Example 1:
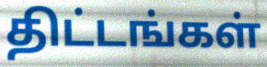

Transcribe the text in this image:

திட்டங்கள்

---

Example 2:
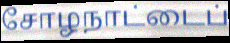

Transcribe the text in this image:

சோழநாட்டைப்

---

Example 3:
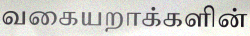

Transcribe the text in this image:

வகையறாக்களின்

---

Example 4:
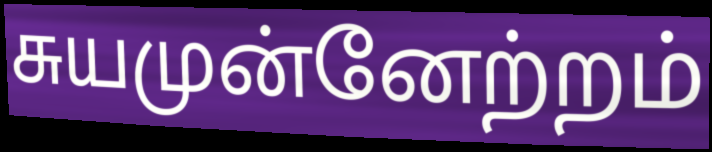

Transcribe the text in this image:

சுயமுன்னேற்றம்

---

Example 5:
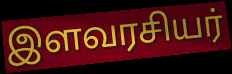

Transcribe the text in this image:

இளவரசியர்